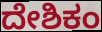
ದೇಶಿಕಂ